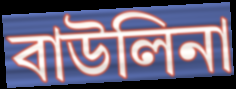
বাউলিনা